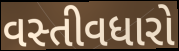
વસ્તીવધારો